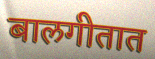
बालगीतात